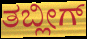
ತಬ್ಲೀಗ್